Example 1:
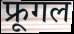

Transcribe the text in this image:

फ्रूगल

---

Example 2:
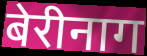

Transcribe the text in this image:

बेरीनाग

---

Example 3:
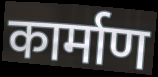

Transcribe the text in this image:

कार्माण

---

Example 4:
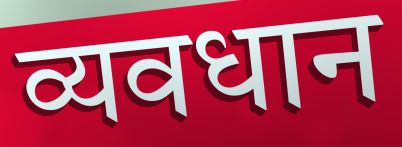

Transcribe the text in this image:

व्यवधान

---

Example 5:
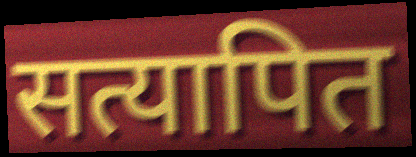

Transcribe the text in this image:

सत्यापित